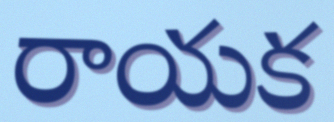
రాయక